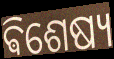
ଵିଶେଷ୍ୟ